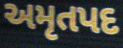
અમૃતપદ